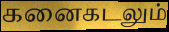
கனைகடலும்